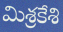
మిశ్రకేశి